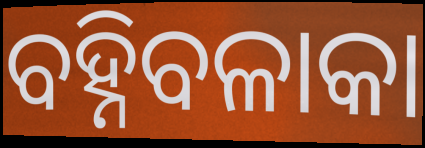
ବହ୍ନିବଳାକା